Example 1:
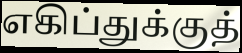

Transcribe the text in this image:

எகிப்துக்குத்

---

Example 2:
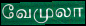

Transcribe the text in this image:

வேமுலா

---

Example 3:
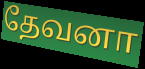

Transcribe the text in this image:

தேவனா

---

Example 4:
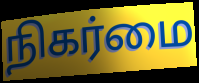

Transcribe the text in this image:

நிகர்மை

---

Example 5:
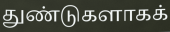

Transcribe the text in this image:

துண்டுகளாகக்